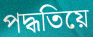
পদ্ধতিয়ে